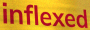
inflexed